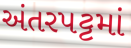
અંતરપટ્ટમાં